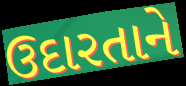
ઉદારતાને